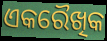
ଏକରୈଖିକ